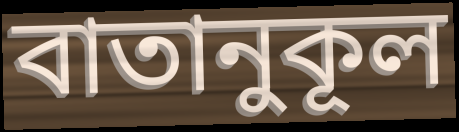
বাতানুকূল